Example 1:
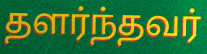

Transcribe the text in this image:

தளர்ந்தவர்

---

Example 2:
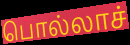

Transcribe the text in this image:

பொல்லாச்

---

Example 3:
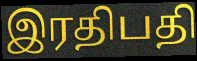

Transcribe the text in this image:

இரதிபதி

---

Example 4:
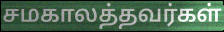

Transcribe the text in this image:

சமகாலத்தவர்கள்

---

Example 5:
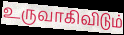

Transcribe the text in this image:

உருவாகிவிடும்